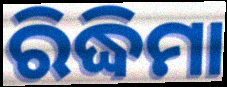
ରିଦ୍ଧିମା